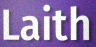
Laith